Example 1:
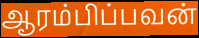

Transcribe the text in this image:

ஆரம்பிப்பவன்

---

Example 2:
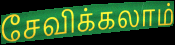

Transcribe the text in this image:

சேவிக்கலாம்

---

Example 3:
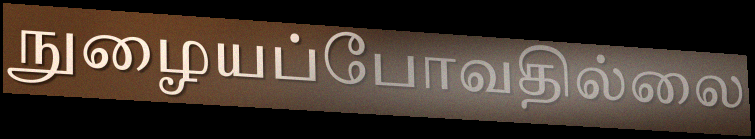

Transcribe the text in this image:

நுழையப்போவதில்லை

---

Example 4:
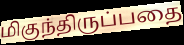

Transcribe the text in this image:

மிகுந்திருப்பதை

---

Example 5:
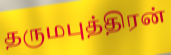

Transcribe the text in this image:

தருமபுத்திரன்